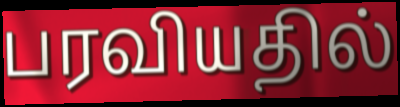
பரவியதில்